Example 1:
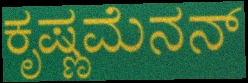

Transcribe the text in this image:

ಕೃಷ್ಣಮೆನನ್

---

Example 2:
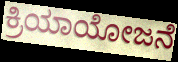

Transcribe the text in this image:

ಕ್ರಿಯಾಯೋಜನೆ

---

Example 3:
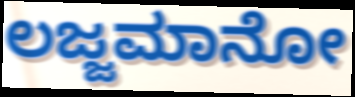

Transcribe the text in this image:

ಲಜ್ಜಮಾನೋ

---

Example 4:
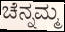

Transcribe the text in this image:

ಚೆನ್ನಮ್ಮ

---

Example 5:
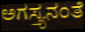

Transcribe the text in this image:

ಅಗಸ್ತ್ಯನಂತೆ